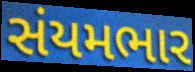
સંયમભાર